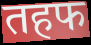
तहफ